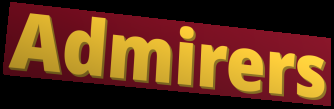
Admirers